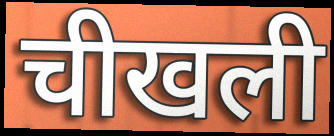
चीखली